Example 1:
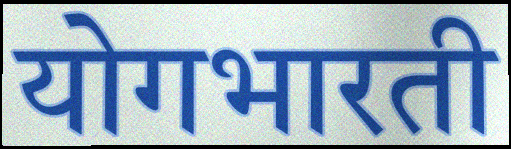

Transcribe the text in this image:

योगभारती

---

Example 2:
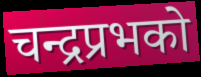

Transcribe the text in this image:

चन्द्रप्रभको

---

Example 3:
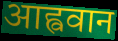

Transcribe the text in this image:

आह्ववान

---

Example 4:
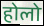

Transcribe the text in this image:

होलो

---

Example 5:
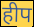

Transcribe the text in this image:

हीप